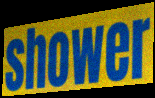
shower